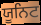
ਯੂਨਿਟ